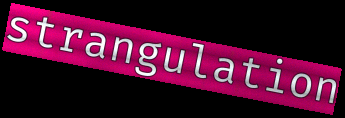
strangulation